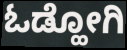
ಓಡ್ಹೋಗಿ